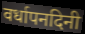
वर्धापनदिनी